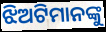
ଝିଅଟିମାନଙ୍କୁ